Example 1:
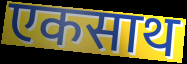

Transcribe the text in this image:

एकसाथ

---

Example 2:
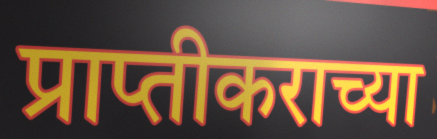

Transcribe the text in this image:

प्राप्तीकराच्या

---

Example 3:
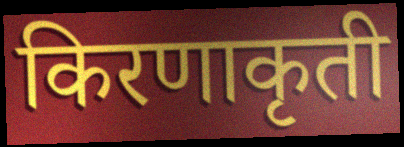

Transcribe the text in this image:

किरणाकृती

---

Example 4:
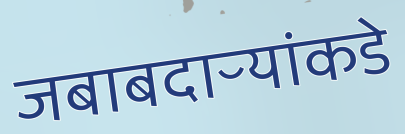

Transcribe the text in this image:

जबाबदाऱ्यांकडे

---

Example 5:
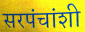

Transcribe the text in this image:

सरपंचांशी